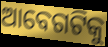
ଆବେଗଟିକୁ